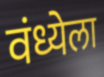
वंध्येला